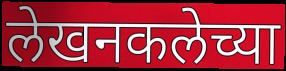
लेखनकलेच्या